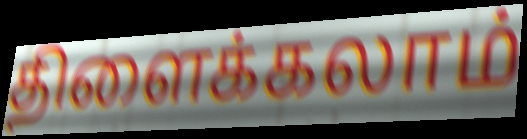
திளைக்கலாம்